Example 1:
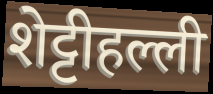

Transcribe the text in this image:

शेट्टीहल्ली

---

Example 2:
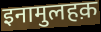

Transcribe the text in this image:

इनामुलहक़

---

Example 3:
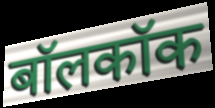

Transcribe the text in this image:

बॉलकॉक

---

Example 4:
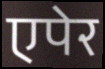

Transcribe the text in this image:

एपेर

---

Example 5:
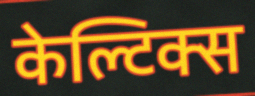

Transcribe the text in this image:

केल्टिक्स